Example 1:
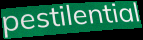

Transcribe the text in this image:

pestilential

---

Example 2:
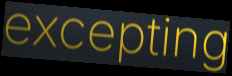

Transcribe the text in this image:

excepting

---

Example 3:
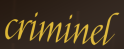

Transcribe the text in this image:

criminel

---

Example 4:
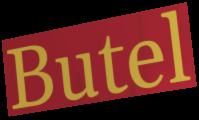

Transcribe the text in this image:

Butel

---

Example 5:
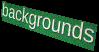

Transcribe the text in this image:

backgrounds